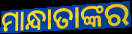
ମାନ୍ଧାତାଙ୍କର